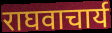
राघवाचार्य